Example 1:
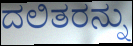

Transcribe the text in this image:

ದಲಿತರನ್ನು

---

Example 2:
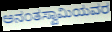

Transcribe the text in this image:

ಅನಂತಸ್ವಾಮಿಯವರ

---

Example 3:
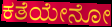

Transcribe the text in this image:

ಕತೆಯೇನೋ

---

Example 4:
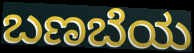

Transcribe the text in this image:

ಬಣಬೆಯ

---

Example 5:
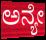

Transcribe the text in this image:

ಅನ್ಯೇ